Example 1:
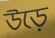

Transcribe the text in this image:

উড়ে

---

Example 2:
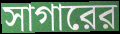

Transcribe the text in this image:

সাগারের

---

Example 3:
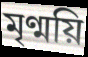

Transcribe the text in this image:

মৃণ্ময়ি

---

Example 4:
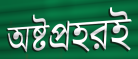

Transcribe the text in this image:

অষ্টপ্রহরই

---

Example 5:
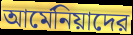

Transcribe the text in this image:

আর্মেনিয়াদের